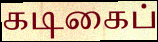
கடிகைப்